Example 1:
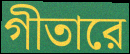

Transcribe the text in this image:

গীতারে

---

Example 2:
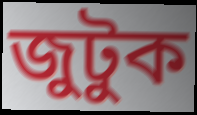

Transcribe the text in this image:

জুটুক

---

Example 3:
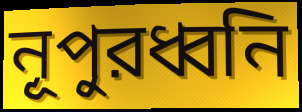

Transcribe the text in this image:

নূপুরধ্বনি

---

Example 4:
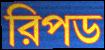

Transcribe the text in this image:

রিপড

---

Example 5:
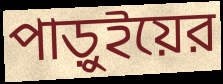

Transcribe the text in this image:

পাড়ুইয়ের